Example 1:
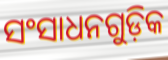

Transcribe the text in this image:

ସଂସାଧନଗୁଡ଼ିକ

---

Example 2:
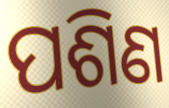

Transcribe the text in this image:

ପଶିଣ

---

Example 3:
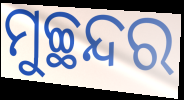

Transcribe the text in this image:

ମୁଚ୍ଛନ୍ଦର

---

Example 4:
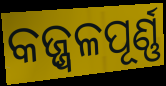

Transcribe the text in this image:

କଜ୍ଜ୍ୱଳପୂର୍ଣ୍ଣ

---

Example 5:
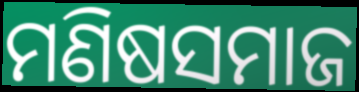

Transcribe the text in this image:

ମଣିଷସମାଜ